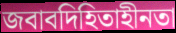
জবাবদিহিতাহীনতা